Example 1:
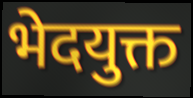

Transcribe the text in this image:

भेदयुक्त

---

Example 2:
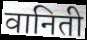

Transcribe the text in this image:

वानिती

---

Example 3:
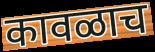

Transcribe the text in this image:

कावळाच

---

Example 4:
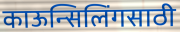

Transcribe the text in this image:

काऊन्सिलिंगसाठी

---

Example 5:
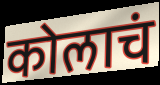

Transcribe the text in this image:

कोलाचं